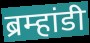
ब्रम्हांडी